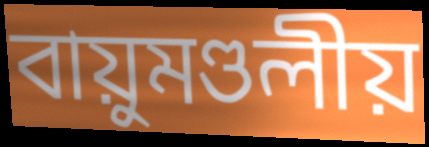
বায়ুমণ্ডলীয়